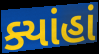
ક્યાંહાં